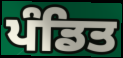
ਪੰਡਿਤ